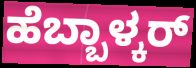
ಹೆಬ್ಬಾಳ್ಕರ್